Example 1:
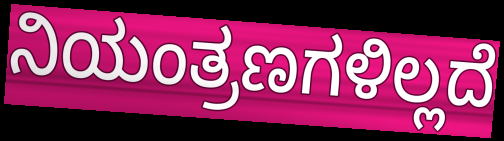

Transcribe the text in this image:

ನಿಯಂತ್ರಣಗಳಿಲ್ಲದೆ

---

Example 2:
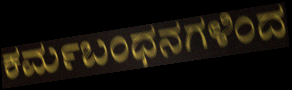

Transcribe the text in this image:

ಕರ್ಮಬಂಧನಗಳಿಂದ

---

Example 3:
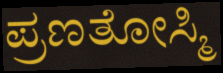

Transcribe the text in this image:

ಪ್ರಣತೋಸ್ಮಿ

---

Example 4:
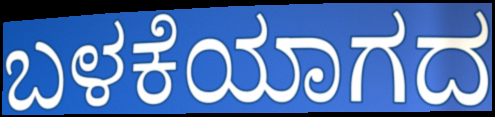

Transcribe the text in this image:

ಬಳಕೆಯಾಗದ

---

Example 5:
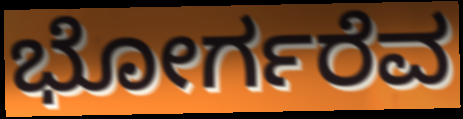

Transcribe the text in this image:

ಭೋರ್ಗರೆವ